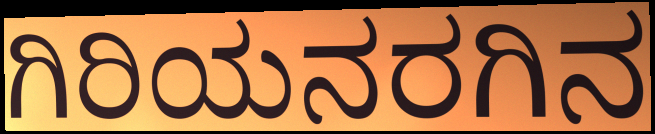
ಗಿರಿಯನರಗಿನ